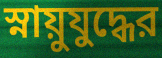
স্নায়ুযুদ্ধের